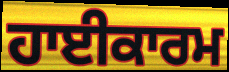
ਹਾਈਕਾਰਮ